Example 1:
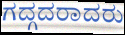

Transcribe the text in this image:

ಗದ್ಗದರಾದರು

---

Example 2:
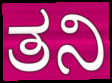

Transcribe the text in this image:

ತನಿ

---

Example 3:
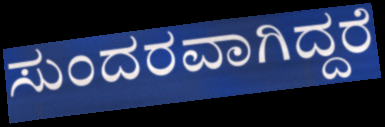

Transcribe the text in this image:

ಸುಂದರವಾಗಿದ್ದರೆ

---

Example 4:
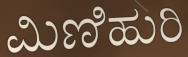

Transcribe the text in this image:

ಮಿಣಿಹುರಿ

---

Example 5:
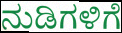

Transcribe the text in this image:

ನುಡಿಗಳಿಗೆ